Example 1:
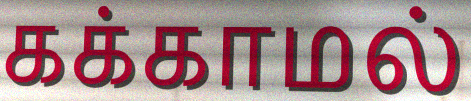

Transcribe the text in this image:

கக்காமல்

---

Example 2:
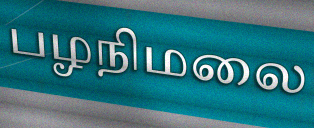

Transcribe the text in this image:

பழநிமலை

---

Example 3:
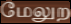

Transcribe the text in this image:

மேலுற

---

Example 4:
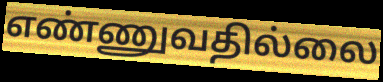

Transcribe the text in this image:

எண்ணுவதில்லை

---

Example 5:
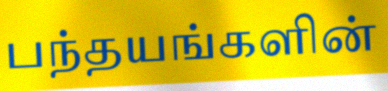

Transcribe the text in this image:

பந்தயங்களின்